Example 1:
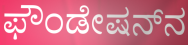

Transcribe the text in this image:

ಫೌಂಡೇಷನ್‌ನ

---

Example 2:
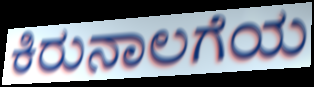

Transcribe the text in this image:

ಕಿರುನಾಲಗೆಯ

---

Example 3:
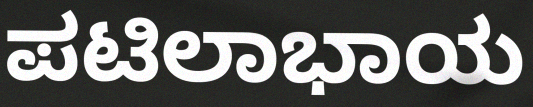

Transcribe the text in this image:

ಪಟಿಲಾಭಾಯ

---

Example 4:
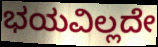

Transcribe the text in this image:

ಭಯವಿಲ್ಲದೇ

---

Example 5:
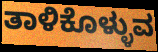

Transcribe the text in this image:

ತಾಳಿಕೊಳ್ಳುವ